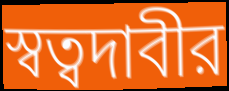
স্বত্বদাবীর